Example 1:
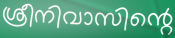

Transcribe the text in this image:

ശ്രീനിവാസിന്റെ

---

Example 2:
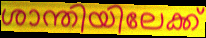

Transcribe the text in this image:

ശാന്തിയിലേക്ക്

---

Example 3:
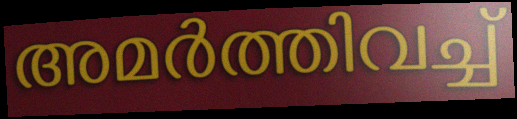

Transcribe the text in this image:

അമർത്തിവച്ച്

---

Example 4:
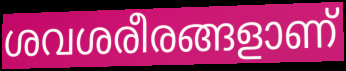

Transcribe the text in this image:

ശവശരീരങ്ങളാണ്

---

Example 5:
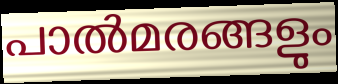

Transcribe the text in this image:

പാൽമരങ്ങളും